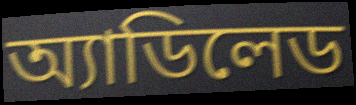
অ্যাডিলেড